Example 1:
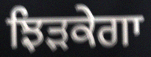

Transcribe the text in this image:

ਝਿੜਕੇਗਾ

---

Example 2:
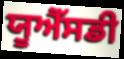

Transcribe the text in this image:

ਯੂਐੱਸਡੀ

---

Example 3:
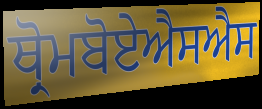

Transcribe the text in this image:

ਥ੍ਰੋਮਬੋਏਐਸਐਸ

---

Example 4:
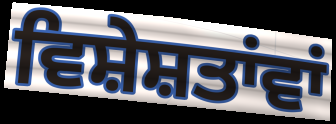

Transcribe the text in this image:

ਵਿਸ਼ੇਸ਼ਤਾਂਵਾਂ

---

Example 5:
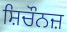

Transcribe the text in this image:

ਸ਼ਿਚੌਨਜ਼